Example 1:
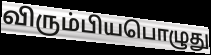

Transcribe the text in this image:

விரும்பியபொழுது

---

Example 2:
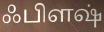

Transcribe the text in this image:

ஃபிளஷ்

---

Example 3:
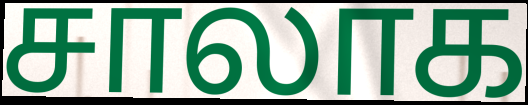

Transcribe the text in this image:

சாலாக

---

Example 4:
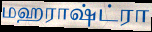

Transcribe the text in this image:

மஹராஷ்ட்ரா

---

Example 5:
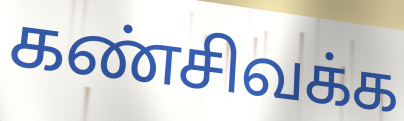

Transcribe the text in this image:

கண்சிவக்க